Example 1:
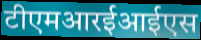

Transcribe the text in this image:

टीएमआरईआईएस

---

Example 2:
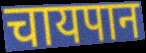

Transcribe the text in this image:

चायपान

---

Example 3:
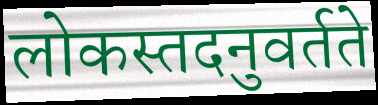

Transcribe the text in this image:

लोकस्तदनुवर्तते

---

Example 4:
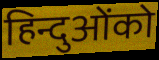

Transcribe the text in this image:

हिन्दुओंको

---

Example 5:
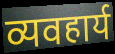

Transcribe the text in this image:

व्यवहार्य